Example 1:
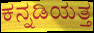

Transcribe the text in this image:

ಕನ್ನಡಿಯತ್ತ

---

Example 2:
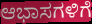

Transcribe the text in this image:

ಆಭಾಸಗಳಿಗೆ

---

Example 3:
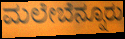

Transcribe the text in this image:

ಮಲೇಬೆನ್ನೂರು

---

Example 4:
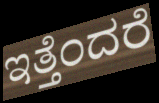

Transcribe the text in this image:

ಇತ್ತೆಂದರೆ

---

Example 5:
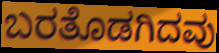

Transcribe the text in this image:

ಬರತೊಡಗಿದವು